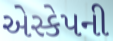
એસ્કેપની